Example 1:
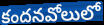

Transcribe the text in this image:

కందనవోలులో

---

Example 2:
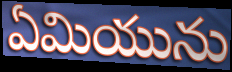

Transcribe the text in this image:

ఏమియును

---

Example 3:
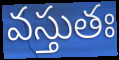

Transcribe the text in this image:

వస్తుతః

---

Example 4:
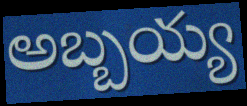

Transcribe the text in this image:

అబ్బయ్య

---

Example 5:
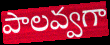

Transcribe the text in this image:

పాలవ్వగా